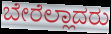
ಬೇರೆಲ್ಲಾದರು